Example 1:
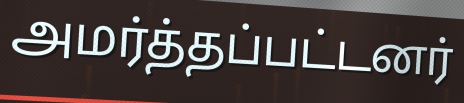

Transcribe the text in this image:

அமர்த்தப்பட்டனர்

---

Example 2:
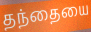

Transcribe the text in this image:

தந்தையை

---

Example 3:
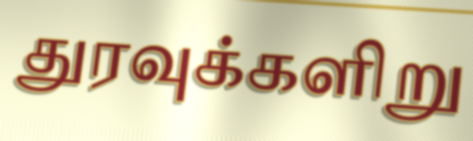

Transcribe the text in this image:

துரவுக்களிறு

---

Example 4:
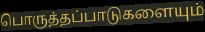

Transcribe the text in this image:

பொருத்தப்பாடுகளையும்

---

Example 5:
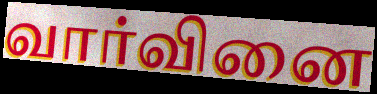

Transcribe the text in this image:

வார்வினை